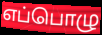
எப்பொழு